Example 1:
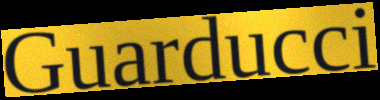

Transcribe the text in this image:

Guarducci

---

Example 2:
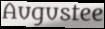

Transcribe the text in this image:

Augustee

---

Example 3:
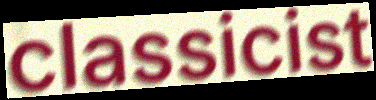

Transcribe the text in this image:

classicist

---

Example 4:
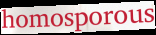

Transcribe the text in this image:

homosporous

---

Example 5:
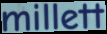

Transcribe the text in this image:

millett